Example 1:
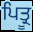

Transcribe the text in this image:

ਪਿਤ੍ਰੂ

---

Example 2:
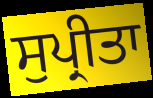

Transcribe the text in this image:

ਸੁਪ੍ਰੀਤਾ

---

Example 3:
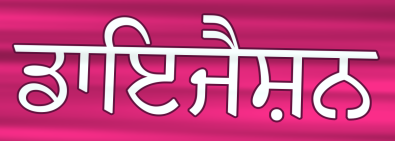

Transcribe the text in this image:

ਡਾਇਜੈਸ਼ਨ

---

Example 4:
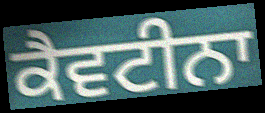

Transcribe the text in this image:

ਕੈਵਟੀਨਾ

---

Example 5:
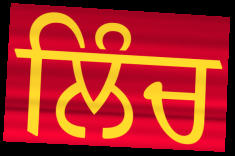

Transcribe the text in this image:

ਲਿੰਚ